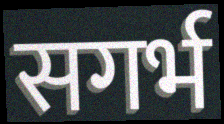
सगर्भ